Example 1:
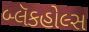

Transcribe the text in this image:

બ્લૅકહોલ્સ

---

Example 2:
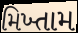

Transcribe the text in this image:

મિખ્તામ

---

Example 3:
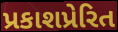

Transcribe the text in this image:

પ્રકાશપ્રેરિત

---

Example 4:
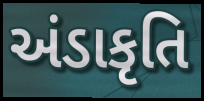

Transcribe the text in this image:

અંડાકૃતિ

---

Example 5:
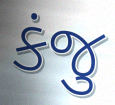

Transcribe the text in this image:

કંજુ